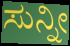
ಸುನ್ನೀ